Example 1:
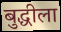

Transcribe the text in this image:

बुद्धीला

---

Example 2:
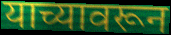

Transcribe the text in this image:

याच्यावरून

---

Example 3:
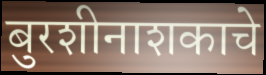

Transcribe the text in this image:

बुरशीनाशकाचे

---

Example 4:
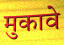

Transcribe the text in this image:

मुकावे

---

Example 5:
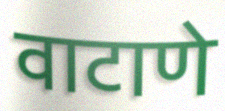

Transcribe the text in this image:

वाटाणे